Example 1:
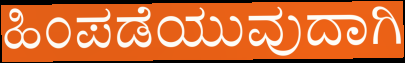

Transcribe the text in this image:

ಹಿಂಪಡೆಯುವುದಾಗಿ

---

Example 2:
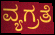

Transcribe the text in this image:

ವ್ಯಗ್ರತೆ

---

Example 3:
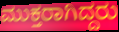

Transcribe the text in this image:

ಮುಕ್ತರಾಗಿದ್ದರು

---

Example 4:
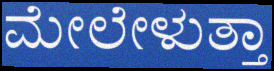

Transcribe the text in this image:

ಮೇಲೇಳುತ್ತಾ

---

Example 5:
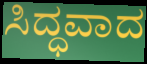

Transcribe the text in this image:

ಸಿದ್ಧವಾದ